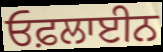
ਓਫ਼ਲਾਈਨ